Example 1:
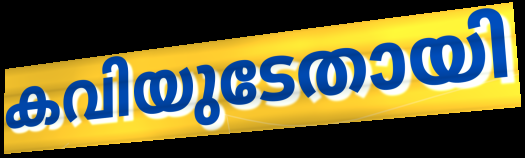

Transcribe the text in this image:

കവിയുടേതായി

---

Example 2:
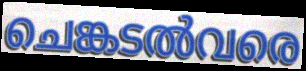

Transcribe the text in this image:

ചെങ്കടൽവരെ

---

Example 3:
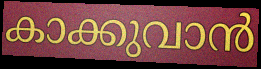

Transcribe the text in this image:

കാക്കുവാൻ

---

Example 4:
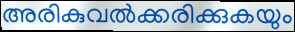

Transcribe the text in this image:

അരികുവൽക്കരിക്കുകയും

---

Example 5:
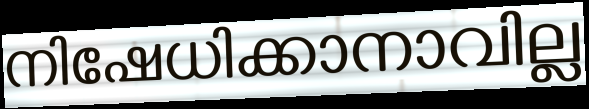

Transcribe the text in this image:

നിഷേധിക്കാനാവില്ല